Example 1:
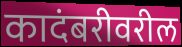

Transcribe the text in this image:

कादंबरीवरील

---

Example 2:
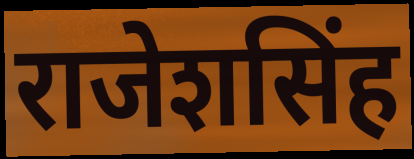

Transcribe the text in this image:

राजेशसिंह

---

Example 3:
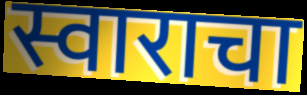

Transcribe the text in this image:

स्वाराचा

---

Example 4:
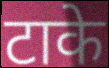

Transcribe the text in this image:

टाके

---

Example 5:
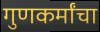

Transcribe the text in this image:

गुणकर्मांचा